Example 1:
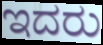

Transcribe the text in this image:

ಇದರು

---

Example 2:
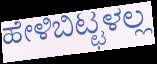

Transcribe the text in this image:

ಹೇಳಿಬಿಟ್ಟಳಲ್ಲ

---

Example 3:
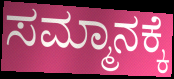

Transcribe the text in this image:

ಸಮ್ಮಾನಕ್ಕೆ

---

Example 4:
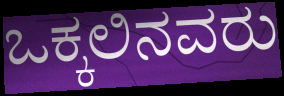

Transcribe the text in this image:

ಒಕ್ಕಲಿನವರು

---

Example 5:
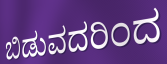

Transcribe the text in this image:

ಬಿಡುವದರಿಂದ